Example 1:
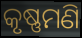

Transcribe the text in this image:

କୃଷ୍ଣମଣି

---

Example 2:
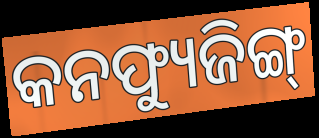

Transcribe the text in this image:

କନଫ୍ୟୁଜିଙ୍ଗ୍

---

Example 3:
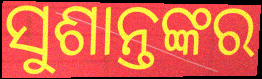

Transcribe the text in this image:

ସୁଶାନ୍ତଙ୍କର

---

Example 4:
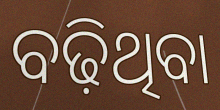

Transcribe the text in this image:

ବଢ଼ିଥିବା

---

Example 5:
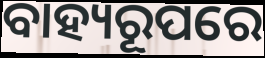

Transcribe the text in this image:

ବାହ୍ୟରୂପରେ